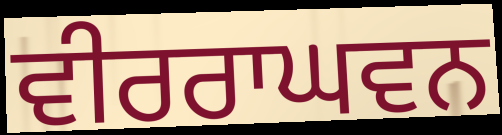
ਵੀਰਰਾਘਵਨ